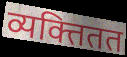
व्यक्तितत